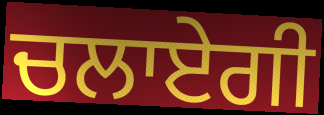
ਚਲਾਏਗੀ